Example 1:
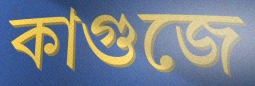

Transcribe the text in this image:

কাগুজে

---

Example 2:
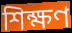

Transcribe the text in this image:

শিক্ষণ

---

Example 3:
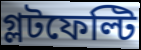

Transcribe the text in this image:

গ্লটফেল্টি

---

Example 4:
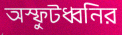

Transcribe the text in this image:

অস্ফুটধ্বনির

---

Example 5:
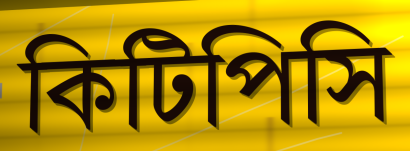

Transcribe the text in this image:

কিটিপিসি